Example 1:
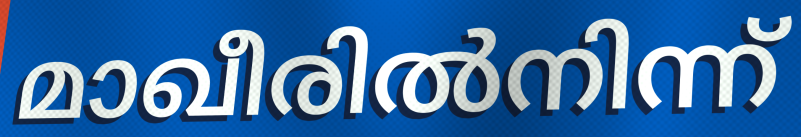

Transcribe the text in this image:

മാഖീരിൽനിന്ന്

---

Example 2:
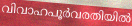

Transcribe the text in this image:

വിവാഹപൂർവരതിയിൽ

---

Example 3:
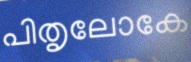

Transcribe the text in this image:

പിതൃലോകേ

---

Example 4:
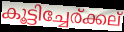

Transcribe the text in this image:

കൂട്ടിച്ചേര്ക്കല്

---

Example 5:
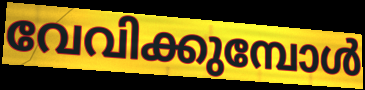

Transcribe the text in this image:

വേവിക്കുമ്പോൾ